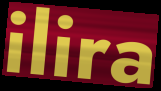
ilira